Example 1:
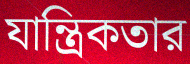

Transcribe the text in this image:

যান্ত্রিকতার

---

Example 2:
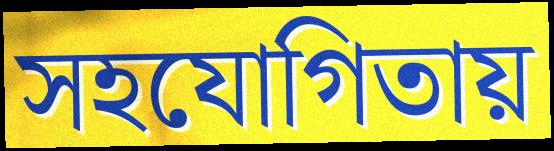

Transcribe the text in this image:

সহযোগিতায়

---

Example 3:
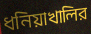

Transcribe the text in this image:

ধনিয়াখালির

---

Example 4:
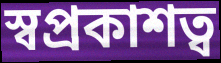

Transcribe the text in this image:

স্বপ্রকাশত্ব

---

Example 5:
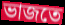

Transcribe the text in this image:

ভাজতে